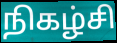
நிகழ்சி